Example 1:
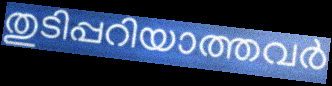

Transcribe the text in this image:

തുടിപ്പറിയാത്തവർ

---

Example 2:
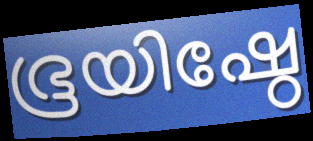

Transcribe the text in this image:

ഭൂയിഷ്ഠേ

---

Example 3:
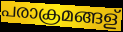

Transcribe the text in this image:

പരാക്രമങ്ങള്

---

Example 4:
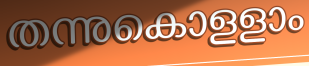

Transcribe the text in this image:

തന്നുകൊളളാം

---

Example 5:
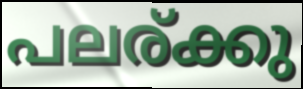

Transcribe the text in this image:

പലര്ക്കു